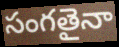
సంగతైనా